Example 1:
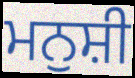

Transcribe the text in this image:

ਮਨੁਸ਼ੀ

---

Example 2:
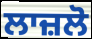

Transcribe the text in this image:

ਲਾਜ਼ਲੋ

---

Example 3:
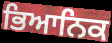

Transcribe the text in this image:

ਭਿਆਨਿਕ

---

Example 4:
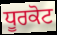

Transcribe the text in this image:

ਧੂਰਕੋਟ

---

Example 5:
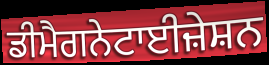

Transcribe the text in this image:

ਡੀਮੈਗਨੇਟਾਈਜ਼ੇਸ਼ਨ